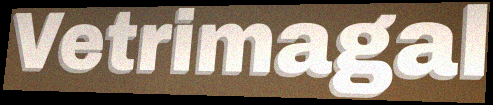
Vetrimagal